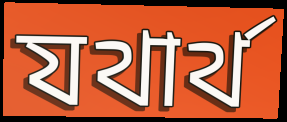
যথাৰ্থ